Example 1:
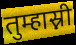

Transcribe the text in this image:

तुम्हास्नी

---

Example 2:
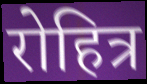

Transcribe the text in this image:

रोहित्र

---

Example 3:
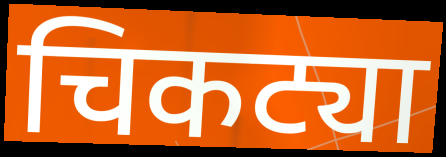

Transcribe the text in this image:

चिकट्या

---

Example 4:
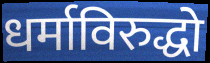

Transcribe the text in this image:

धर्माविरुद्धो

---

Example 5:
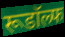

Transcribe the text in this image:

रूडॉल्फ